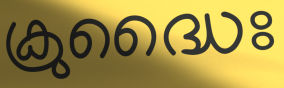
ക്രുദ്ധൈഃ